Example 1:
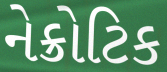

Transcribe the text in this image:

નેક્રોટિક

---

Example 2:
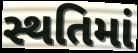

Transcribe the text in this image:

સ્થતિમાં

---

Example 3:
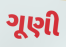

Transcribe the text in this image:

ગૂણી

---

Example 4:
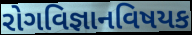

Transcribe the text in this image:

રોગવિજ્ઞાનવિષયક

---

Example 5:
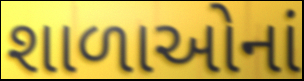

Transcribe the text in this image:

શાળાઓનાં